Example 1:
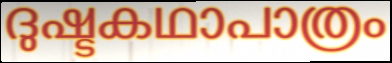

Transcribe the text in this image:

ദുഷ്ടകഥാപാത്രം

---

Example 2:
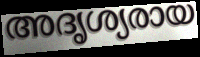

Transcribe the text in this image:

അദൃശ്യരായ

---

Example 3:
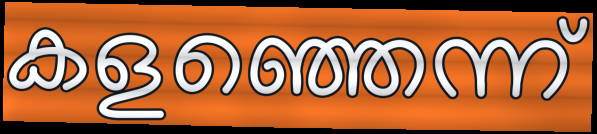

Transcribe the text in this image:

കളഞ്ഞെന്ന്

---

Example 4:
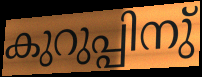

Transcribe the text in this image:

കുറുപ്പിനു്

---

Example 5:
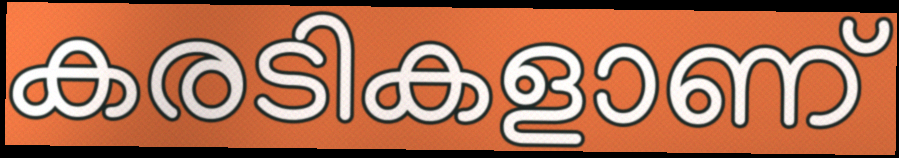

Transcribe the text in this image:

കരടികളാണ്